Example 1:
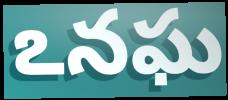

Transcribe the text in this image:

ఽనఘ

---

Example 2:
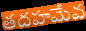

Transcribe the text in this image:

తదహమేవ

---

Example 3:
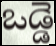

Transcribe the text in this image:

ఒడ్డె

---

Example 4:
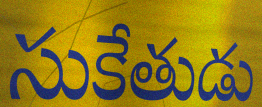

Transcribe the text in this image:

సుకేతుడు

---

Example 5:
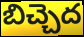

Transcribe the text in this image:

బిచ్చెద